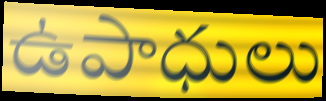
ఉపాధులు